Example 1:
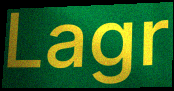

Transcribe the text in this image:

Lagr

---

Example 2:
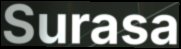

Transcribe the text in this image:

Surasa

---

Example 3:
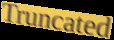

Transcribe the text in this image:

Truncated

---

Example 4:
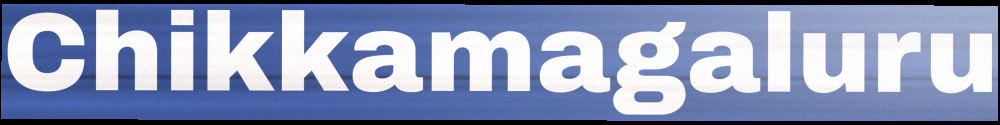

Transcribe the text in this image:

Chikkamagaluru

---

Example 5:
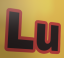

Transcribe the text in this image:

Lu